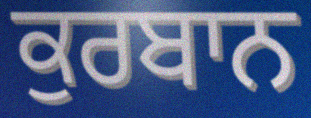
ਕੁਰਬਾਨ